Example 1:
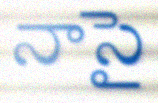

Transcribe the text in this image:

నాసై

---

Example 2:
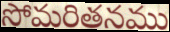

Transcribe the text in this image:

సోమరితనము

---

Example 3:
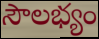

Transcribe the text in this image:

సౌలభ్యం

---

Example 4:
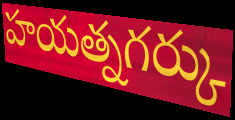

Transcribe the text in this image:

హయత్నగర్కు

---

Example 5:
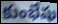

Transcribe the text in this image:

కుంభేషు